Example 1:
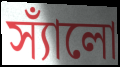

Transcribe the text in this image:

স্যাঁলো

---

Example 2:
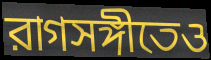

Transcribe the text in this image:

রাগসঙ্গীতেও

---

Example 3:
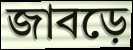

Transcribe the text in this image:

জাবড়ে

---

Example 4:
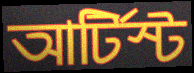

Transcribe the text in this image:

আর্টিস্ট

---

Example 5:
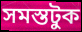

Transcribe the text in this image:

সমস্তটুক